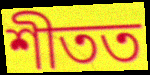
শীতত